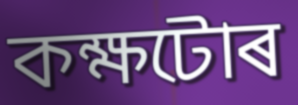
কক্ষটোৰ